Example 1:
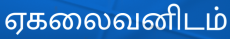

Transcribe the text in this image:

ஏகலைவனிடம்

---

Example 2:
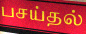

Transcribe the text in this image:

பசய்தல்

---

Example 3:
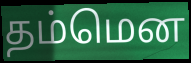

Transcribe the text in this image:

தம்மென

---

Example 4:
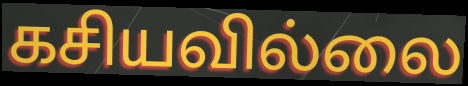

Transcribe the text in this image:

கசியவில்லை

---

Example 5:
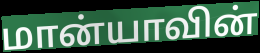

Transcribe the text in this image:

மான்யாவின்